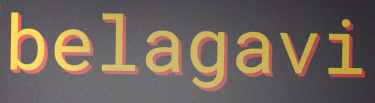
belagavi